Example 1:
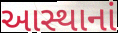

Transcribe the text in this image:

આસ્થાનાં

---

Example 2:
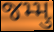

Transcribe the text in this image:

જમ્મુ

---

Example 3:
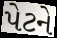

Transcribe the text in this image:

પેટને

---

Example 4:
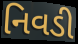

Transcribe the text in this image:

નિવડી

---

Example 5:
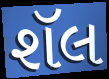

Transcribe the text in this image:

શૅલ